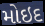
મોઇદ